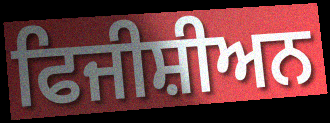
ਫਿਜੀਸ਼ੀਅਨ